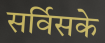
सर्विसके